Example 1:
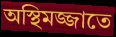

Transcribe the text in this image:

অস্থিমজ্জাতে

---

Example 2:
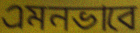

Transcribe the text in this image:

এমনভাবে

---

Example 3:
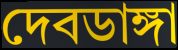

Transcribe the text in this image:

দেবডাঙ্গা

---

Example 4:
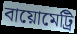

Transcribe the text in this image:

বায়োমেট্রি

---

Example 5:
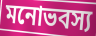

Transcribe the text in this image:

মনোভবস্য